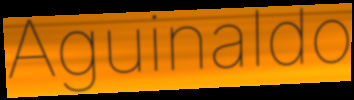
Aguinaldo